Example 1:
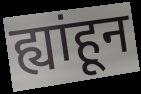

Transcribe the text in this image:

ह्यांहून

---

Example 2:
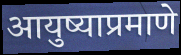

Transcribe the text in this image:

आयुष्याप्रमाणे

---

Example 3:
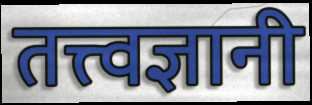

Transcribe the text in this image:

तत्त्वज्ञानी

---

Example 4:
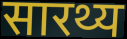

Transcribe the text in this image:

सारथ्य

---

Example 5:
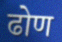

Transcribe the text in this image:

ढोण